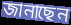
জানাছেন